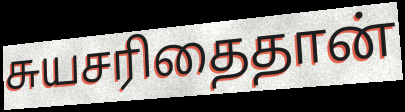
சுயசரிதைதான்